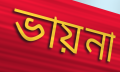
ভায়না